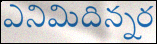
ఎనిమిదిన్నర